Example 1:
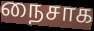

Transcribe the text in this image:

நைசாக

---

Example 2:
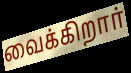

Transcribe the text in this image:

வைக்கிறார்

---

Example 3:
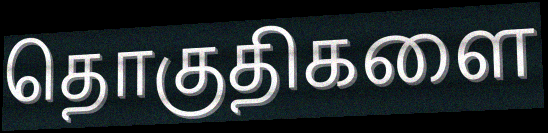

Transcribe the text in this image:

தொகுதிகளை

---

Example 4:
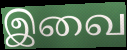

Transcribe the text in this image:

இவை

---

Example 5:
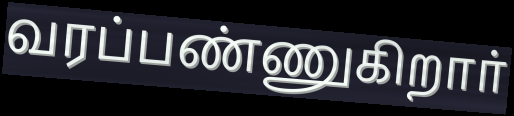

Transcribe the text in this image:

வரப்பண்ணுகிறார்